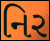
નિર